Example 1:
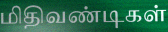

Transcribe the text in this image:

மிதிவண்டிகள்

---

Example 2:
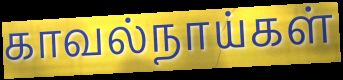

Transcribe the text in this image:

காவல்நாய்கள்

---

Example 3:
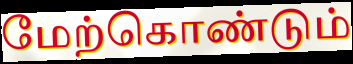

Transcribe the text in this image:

மேற்கொண்டும்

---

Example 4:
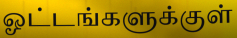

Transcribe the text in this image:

ஓட்டங்களுக்குள்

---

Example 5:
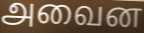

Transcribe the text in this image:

அவைன